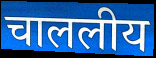
चाललीय